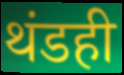
थंडही